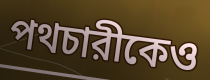
পথচারীকেও